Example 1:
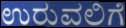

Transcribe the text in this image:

ಉರುವಲಿಗೆ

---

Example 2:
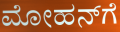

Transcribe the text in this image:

ಮೋಹನ್‌ಗೆ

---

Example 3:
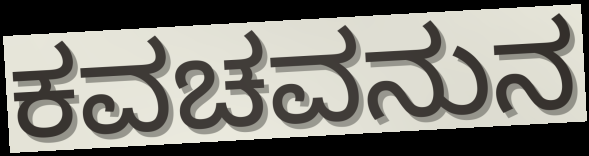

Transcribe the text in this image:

ಕವಚವನುನ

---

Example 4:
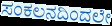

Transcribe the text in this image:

ಸಂಕಲನದಿಂದಲೇ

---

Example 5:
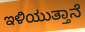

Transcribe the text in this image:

ಇಳಿಯುತ್ತಾನೆ